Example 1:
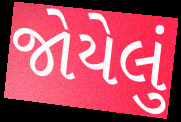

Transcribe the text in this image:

જોયેલું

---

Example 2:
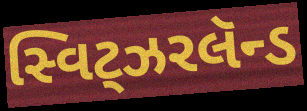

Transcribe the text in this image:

સ્વિટ્ઝરલૅન્ડ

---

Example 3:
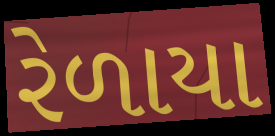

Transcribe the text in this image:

રેળાયા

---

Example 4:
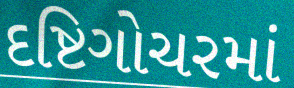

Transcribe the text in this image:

દષ્ટિગોચરમાં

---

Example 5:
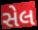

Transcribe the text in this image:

સેલ